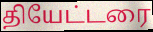
தியேட்டரை